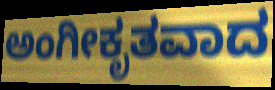
ಅಂಗೀಕೃತವಾದ